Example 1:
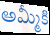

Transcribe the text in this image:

అమ్మీకి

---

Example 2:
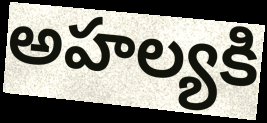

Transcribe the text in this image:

అహల్యకి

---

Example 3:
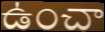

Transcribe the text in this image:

ఉంచా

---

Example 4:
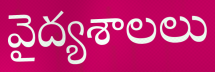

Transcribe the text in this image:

వైద్యశాలలు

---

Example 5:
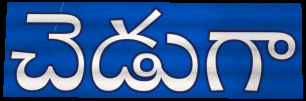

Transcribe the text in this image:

చెడుగా